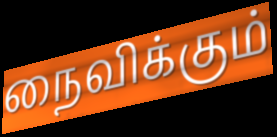
நைவிக்கும்